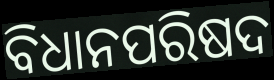
ବିଧାନପରିଷଦ